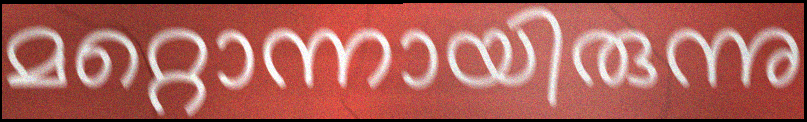
മറ്റൊന്നായിരുന്നു